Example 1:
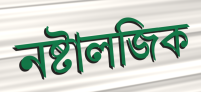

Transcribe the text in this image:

নষ্টালজিক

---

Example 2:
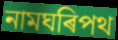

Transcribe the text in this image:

নামঘৰিপথ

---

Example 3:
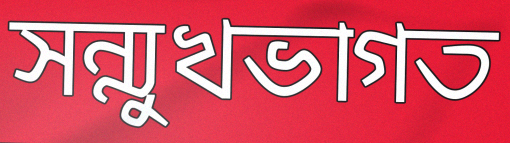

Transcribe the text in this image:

সন্মুখভাগত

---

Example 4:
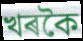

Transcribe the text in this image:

খৰকৈ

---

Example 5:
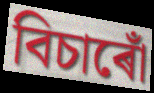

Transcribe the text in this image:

বিচাৰোঁ